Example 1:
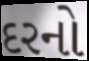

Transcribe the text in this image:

દરનો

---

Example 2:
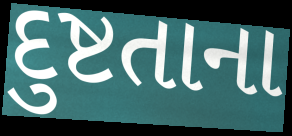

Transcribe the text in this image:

દુષ્ટતાના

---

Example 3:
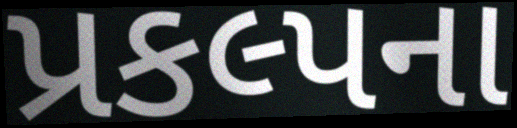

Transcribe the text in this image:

પ્રકલ્પના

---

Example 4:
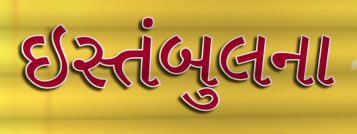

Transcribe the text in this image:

ઇસ્તંબુલના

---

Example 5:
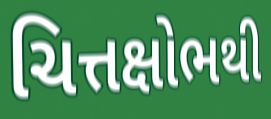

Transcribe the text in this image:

ચિત્તક્ષોભથી